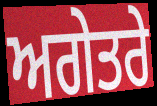
ਅਗੇਤਰੇ